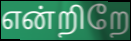
என்றிறே